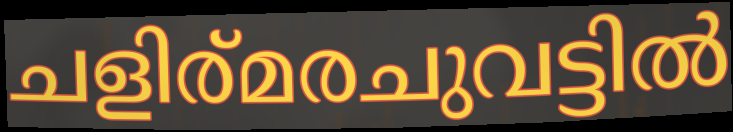
ചളിര്മരചുവട്ടിൽ